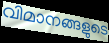
വിമാനങ്ങളുടെ